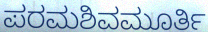
ಪರಮಶಿವಮೂರ್ತಿ